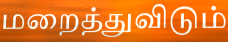
மறைத்துவிடும்